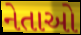
નેતાઓ